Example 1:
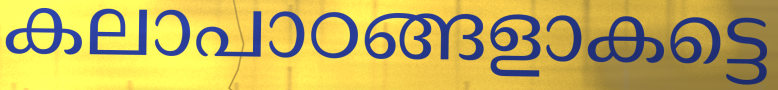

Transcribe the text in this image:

കലാപാഠങ്ങളാകട്ടെ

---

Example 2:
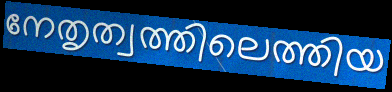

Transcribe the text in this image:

നേതൃത്വത്തിലെത്തിയ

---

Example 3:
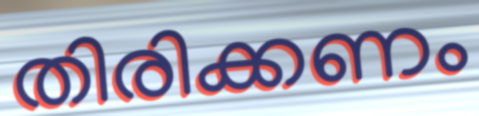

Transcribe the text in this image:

തിരിക്കണം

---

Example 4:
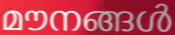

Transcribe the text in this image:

മൗനങ്ങൾ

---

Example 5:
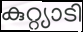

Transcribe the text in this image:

കുറ്റ്യാടി